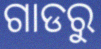
ଗାଡରୁ